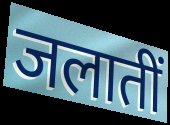
जलातीं